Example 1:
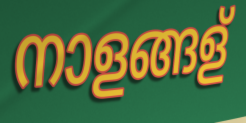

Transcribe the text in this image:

നാളങ്ങള്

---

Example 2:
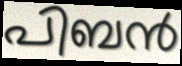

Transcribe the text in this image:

പിബൻ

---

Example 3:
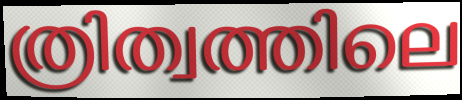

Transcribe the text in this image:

ത്രിത്വത്തിലെ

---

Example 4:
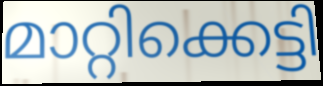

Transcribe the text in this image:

മാറ്റിക്കെട്ടി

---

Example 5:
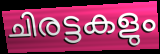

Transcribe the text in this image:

ചിരട്ടകളും